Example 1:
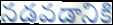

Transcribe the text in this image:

నడవడానికి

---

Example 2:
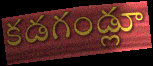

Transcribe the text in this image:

కడగండ్లూ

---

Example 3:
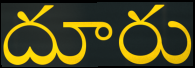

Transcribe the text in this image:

దూరు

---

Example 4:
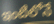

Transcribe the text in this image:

ఇంటిలోనే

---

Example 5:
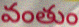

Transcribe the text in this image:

వంతుం